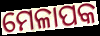
ମେଳାପକ